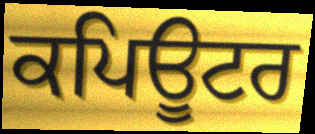
ਕਪਿਊਟਰ